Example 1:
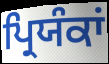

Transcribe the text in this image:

ਪ੍ਰਿਯੰਕਾਂ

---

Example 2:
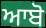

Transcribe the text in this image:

ਆਬੋ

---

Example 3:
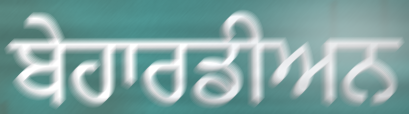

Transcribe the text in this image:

ਬੇਹਾਰਡੀਅਨ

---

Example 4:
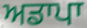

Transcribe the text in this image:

ਅਡਾਪਾ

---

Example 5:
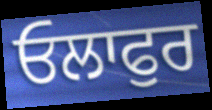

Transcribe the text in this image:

ਓਲਾਫੁਰ